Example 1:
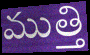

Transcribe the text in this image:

ముత్తి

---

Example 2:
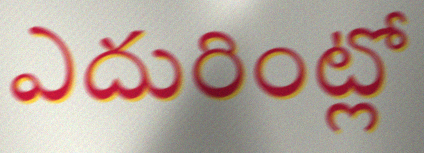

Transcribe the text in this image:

ఎదురింట్లో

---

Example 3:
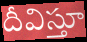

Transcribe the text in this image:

దీవిస్తూ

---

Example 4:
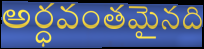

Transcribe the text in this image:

అర్ధవంతమైనది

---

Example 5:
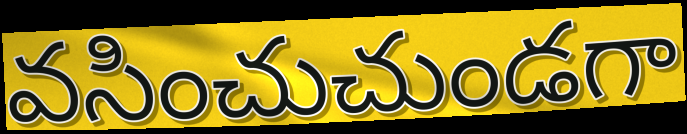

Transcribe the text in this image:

వసించుచుండగా